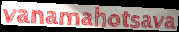
vanamahotsava